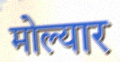
मोल्यार